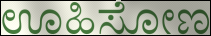
ಊಹಿಸೋಣ